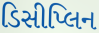
ડિસીપ્લિન